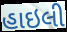
હાઇલી